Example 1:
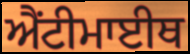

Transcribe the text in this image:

ਐਂਟੀਮਾਈਥ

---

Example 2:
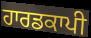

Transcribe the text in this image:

ਹਾਰਡਕਾਪੀ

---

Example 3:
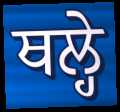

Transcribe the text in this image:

ਥਲ੍ਹੇ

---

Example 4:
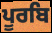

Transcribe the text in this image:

ਪੂਰਬਿ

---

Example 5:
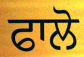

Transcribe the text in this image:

ਫਾਲੋ